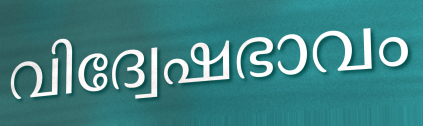
വിദ്വേഷഭാവം